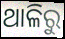
ଥାଳିରୁ